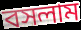
বসলাম